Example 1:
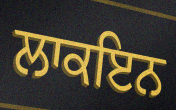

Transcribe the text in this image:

ਲਾਕਇਨ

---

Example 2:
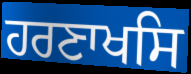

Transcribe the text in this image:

ਹਰਣਾਖਸਿ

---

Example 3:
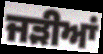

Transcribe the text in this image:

ਜੜੀਆਂ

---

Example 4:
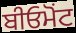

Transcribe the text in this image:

ਬੀਓਮੋਂਟ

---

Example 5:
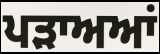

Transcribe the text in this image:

ਪੜਾਅਆਂ